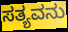
ಸತ್ಯವನು